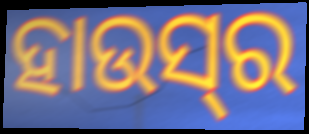
ହାଉସ୍‌ର